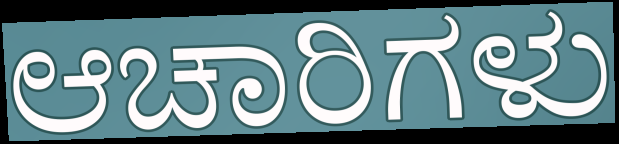
ಆಚಾರಿಗಳು